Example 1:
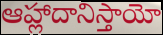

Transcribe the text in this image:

ఆహ్లాదానిస్తాయో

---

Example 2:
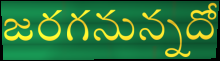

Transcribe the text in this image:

జరగనున్నదో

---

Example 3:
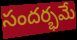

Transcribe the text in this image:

సందర్భమే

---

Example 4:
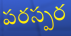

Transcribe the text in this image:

పరస్పర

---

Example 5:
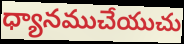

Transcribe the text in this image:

ధ్యానముచేయుచు